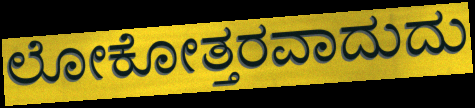
ಲೋಕೋತ್ತರವಾದುದು